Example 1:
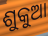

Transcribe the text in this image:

ଶୁକୁଆ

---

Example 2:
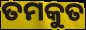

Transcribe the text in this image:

ତମକୁତ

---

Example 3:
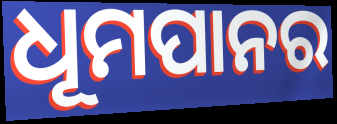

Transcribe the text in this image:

ଧୂମପାନର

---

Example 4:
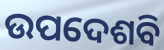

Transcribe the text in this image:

ଉପଦେଶବି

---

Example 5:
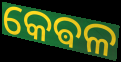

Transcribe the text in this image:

କେଵଳ